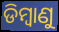
ଡିମ୍ବାଣୁ